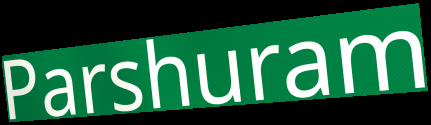
Parshuram